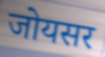
जोयसर